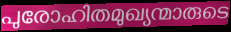
പുരോഹിതമുഖ്യന്മാരുടെ